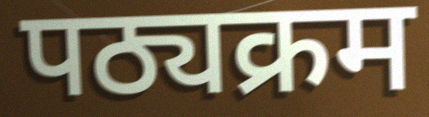
पठ्यक्रम